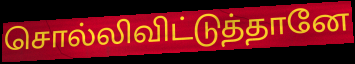
சொல்லிவிட்டுத்தானே